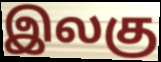
இலகு